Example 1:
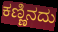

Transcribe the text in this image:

ಕಣ್ಣಿನದು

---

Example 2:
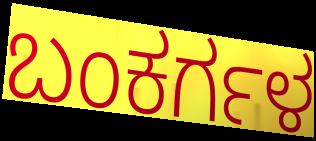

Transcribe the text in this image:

ಬಂಕರ್ಗಳ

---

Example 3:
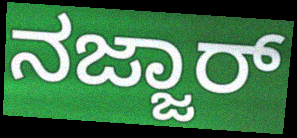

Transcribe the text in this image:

ನಜ್ಜಾರ್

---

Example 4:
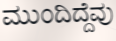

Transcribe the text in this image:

ಮುಂದಿದ್ದೆವು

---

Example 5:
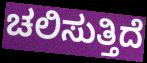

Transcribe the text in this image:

ಚಲಿಸುತ್ತಿದೆ